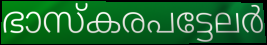
ഭാസ്കരപട്ടേലർ